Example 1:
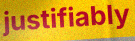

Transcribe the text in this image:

justifiably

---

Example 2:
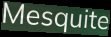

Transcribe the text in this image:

Mesquite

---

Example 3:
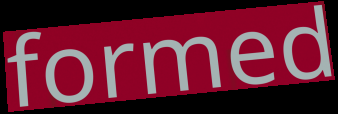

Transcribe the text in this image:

formed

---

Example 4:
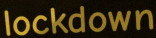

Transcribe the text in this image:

lockdown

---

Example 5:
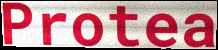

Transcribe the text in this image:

Protea